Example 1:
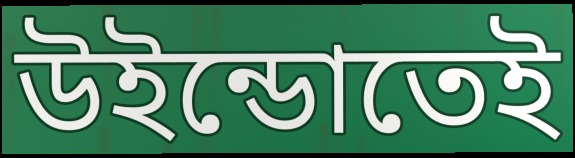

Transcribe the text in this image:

উইন্ডোতেই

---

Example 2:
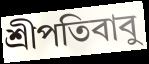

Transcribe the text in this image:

শ্রীপতিবাবু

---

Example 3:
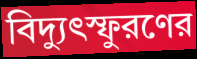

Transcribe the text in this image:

বিদ্যুৎস্ফুরণের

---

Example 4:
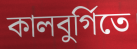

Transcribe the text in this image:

কালবুর্গিতে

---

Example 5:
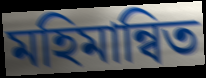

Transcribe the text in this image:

মহিমান্বিত